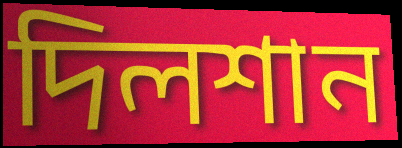
দিলশান